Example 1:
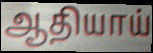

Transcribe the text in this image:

ஆதியாய்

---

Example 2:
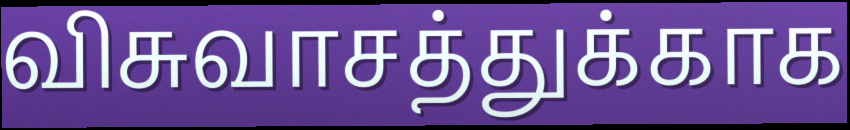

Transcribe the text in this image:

விசுவாசத்துக்காக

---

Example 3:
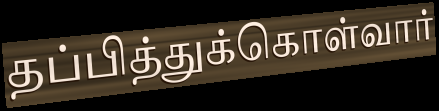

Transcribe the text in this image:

தப்பித்துக்கொள்வார்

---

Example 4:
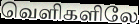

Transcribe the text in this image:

வெளிகளிலே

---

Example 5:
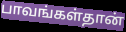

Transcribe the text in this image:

பாவங்கள்தான்